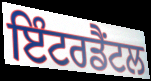
ਇੰਟਰਡੈਂਟਲ